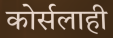
कोर्सलाही